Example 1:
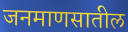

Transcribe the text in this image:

जनमाणसातील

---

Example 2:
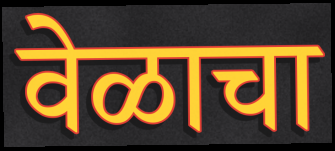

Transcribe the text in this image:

वेळाचा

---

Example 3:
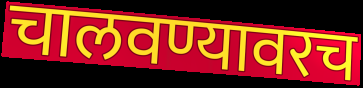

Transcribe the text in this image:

चालवण्यावरच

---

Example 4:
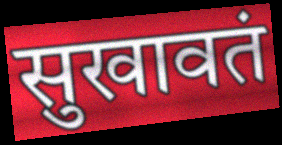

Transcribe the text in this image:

सुखावतं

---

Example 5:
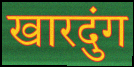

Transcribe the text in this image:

खारदुंग